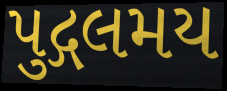
પુદ્ગલમય